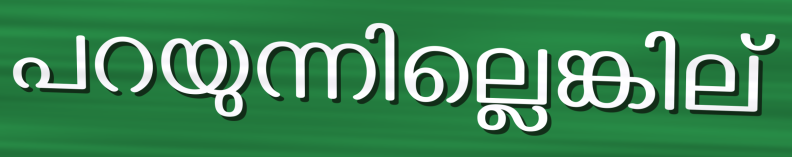
പറയുന്നില്ലെങ്കില്